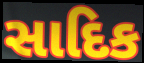
સાદિક